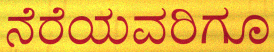
ನೆರೆಯವರಿಗೂ